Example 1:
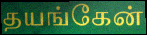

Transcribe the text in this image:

தயங்கேன்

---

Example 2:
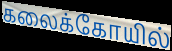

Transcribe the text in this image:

கலைக்கோயில்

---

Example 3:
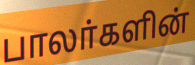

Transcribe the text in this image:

பாலர்களின்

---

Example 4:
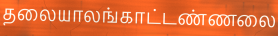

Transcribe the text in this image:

தலையாலங்காட்டண்ணலை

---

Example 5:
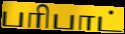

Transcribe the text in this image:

பரிபாட்